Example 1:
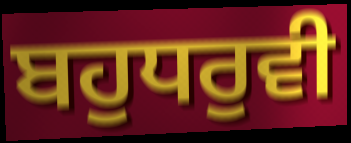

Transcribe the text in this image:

ਬਹੁਧਰੁਵੀ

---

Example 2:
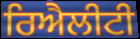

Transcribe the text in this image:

ਰਿਐਲੀਟੀ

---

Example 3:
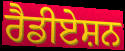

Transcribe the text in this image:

ਰੈਡੀਏਸ਼ਨ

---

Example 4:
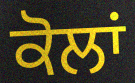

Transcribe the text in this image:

ਕੋਲਾਂ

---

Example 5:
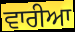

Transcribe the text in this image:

ਵਾਰੀਆ